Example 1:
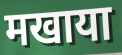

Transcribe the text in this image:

मखाया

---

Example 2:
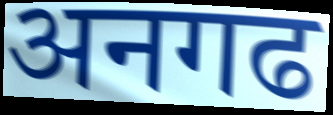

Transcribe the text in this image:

अनगढ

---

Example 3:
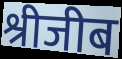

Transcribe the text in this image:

श्रीजीब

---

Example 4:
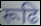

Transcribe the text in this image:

रूढि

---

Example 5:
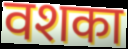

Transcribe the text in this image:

वशका